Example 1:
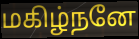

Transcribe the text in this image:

மகிழ்நனே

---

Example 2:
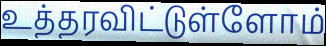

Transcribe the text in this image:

உத்தரவிட்டுள்ளோம்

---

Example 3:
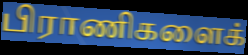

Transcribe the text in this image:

பிராணிகளைக்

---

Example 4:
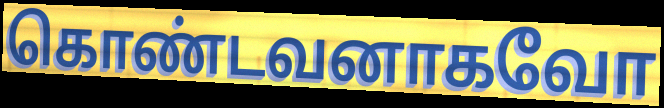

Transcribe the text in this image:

கொண்டவனாகவோ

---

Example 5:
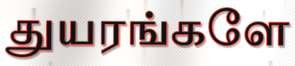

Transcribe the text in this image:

துயரங்களே